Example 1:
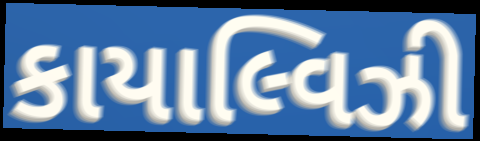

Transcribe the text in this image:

કાયાલ્વિઝી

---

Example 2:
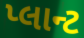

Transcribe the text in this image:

પ્લાન્ટ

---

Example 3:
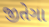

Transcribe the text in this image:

જીતેગા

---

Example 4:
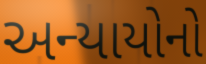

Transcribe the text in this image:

અન્યાયોનો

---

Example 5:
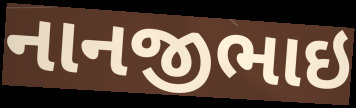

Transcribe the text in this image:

નાનજીભાઇ